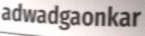
adwadgaonkar